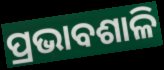
ପ୍ରଭାବଶାଳି